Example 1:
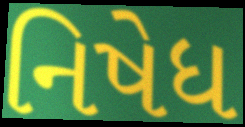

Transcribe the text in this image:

નિષેધ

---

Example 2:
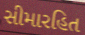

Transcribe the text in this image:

સીમારહિત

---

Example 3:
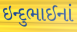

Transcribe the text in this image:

ઇન્દુભાઈનાં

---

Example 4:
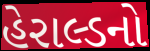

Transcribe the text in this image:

હેરાલ્ડનો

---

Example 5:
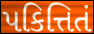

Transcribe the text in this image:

પકિત્તિતં